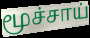
மூச்சாய்